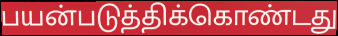
பயன்படுத்திக்கொண்டது